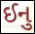
ઈનુ